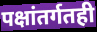
पक्षांतर्गतही